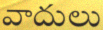
వాదులు